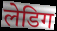
लेडिग